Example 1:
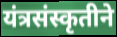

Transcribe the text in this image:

यंत्रसंस्कृतीने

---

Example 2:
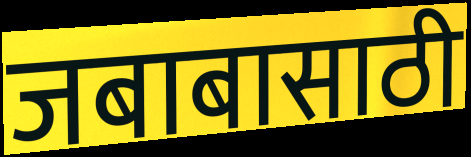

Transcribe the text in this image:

जबाबासाठी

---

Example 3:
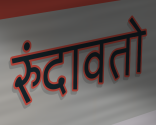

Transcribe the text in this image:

रुंदावतो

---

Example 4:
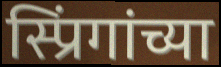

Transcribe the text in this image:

स्प्रिंगांच्या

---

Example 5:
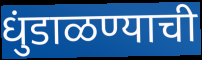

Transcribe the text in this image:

धुंडाळण्याची